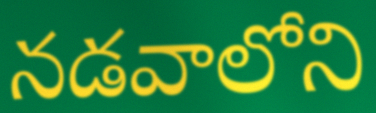
నడవాలోని